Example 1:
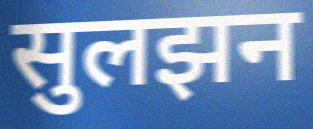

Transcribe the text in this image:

सुलझन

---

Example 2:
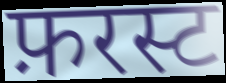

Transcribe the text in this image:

फ़रस्ट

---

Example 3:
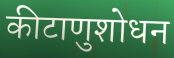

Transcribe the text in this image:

कीटाणुशोधन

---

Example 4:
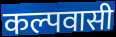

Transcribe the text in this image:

कल्पवासी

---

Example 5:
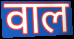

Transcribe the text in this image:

वाल